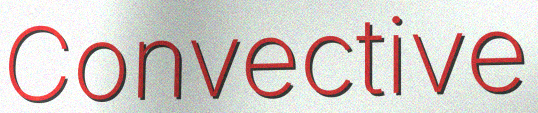
Convective